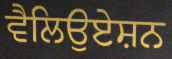
ਵੈਲਿਉਏਸ਼ਨ